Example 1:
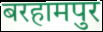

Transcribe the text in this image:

बरहामपुर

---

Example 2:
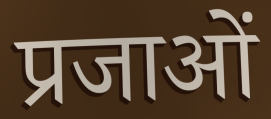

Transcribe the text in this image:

प्रजाओं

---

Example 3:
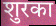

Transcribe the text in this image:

शुरका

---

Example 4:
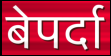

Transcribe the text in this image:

बेपर्दा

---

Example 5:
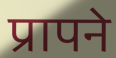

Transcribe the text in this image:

प्रापने